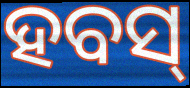
ହବସ୍